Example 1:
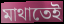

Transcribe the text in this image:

মাথাতেই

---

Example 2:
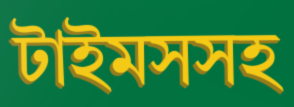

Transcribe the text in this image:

টাইমসসহ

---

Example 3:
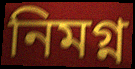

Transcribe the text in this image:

নিমগ্ন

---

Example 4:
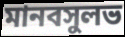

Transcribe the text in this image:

মানবসুলভ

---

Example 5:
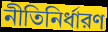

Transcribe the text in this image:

নীতিনির্ধারণ